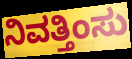
ನಿವತ್ತಿಂಸು